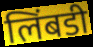
लिंबडी